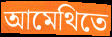
আমেথিতে